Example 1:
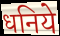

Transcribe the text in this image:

धनिये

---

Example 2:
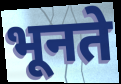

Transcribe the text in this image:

भूनते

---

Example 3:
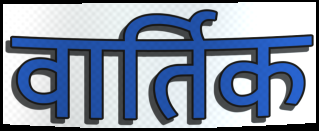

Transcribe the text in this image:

वार्तिक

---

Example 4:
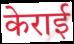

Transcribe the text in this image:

केराई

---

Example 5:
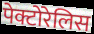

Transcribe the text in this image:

पेक्टोरेलिस